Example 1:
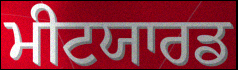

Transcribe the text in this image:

ਮੀਟਯਾਰਡ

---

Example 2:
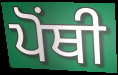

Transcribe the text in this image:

ਪੋਂਥੀ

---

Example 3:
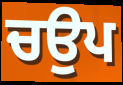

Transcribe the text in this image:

ਚਉਪ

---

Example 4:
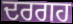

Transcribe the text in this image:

ਦਰਗਹ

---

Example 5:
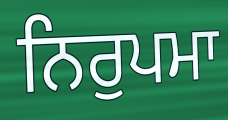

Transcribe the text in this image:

ਨਿਰੁਪਮਾ